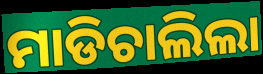
ମାଡିଚାଲିଲା